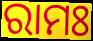
ରାମଃ